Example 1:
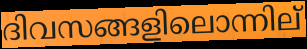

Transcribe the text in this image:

ദിവസങ്ങളിലൊന്നില്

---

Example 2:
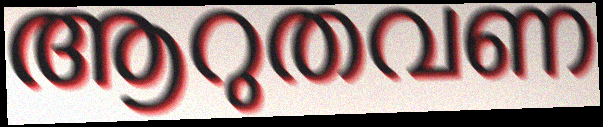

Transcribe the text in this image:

ആറുതവണ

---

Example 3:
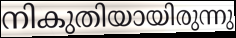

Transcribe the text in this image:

നികുതിയായിരുന്നു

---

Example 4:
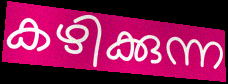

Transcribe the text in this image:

കഴിക്കുന്ന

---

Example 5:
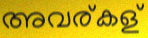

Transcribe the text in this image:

അവര്കള്